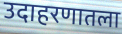
उदाहरणातला